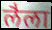
लैला